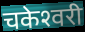
चकेश्वरी